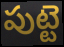
పుట్టె